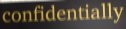
confidentially